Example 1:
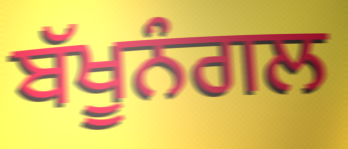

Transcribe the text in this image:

ਬੱਖੂਨੰਗਲ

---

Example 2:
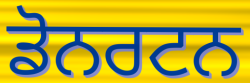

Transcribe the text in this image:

ਡੋਨਰਟਨ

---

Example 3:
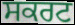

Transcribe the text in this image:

ਸਕਰਟ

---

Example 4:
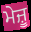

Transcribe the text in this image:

ਮੇਜ਼ੂ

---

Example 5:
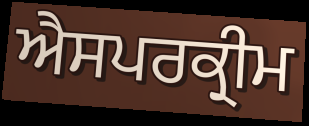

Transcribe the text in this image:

ਐਸਪਰਕ੍ਰੀਮ